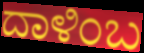
ದಾಳಿಂಬ